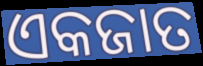
ଏକଜାତ